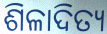
ଶିଳାଦିତ୍ୟ